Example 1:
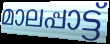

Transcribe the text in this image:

മാലപ്പാട്ട്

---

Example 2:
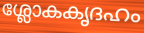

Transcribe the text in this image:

ശ്ലോകകൃദഹം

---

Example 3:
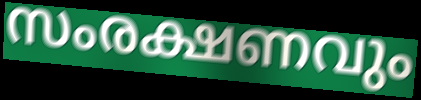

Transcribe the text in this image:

സംരക്ഷണവും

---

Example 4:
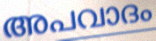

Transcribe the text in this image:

അപവാദം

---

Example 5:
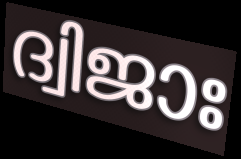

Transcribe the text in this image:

ദ്വിജാഃ